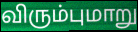
விரும்புமாறு